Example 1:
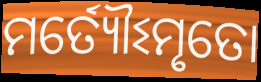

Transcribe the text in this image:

ମର୍ତ୍ୟୌଽମୃତୋ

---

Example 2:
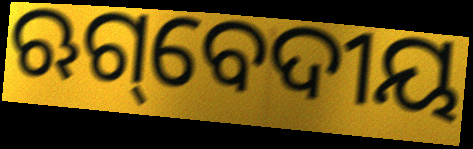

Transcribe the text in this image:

ଋଗ୍‌ବେଦୀୟ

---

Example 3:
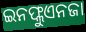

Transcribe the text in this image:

ଇନଫ୍ଲୁଏନଜା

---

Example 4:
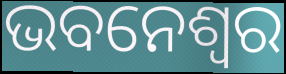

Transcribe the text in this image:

ଭବନେଶ୍ୱର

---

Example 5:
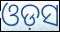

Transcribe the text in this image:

ଓଡ଼ସ